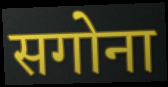
सगोना